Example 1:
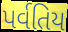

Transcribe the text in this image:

પર્વતિય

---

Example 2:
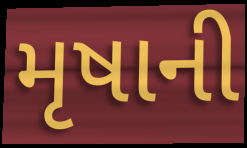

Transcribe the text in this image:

મૃષાની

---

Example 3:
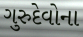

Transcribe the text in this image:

ગુરુદેવોના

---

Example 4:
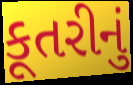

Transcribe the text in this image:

કૂતરીનું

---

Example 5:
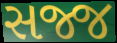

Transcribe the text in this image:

સજ્જ